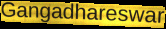
Gangadhareswar